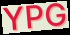
YPG